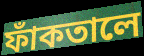
ফাঁকতালে